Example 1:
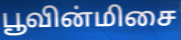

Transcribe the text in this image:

பூவின்மிசை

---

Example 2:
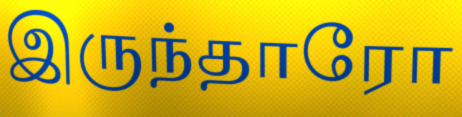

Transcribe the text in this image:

இருந்தாரோ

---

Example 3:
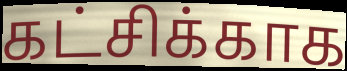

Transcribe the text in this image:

கட்சிக்காக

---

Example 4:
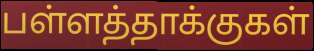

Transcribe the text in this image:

பள்ளத்தாக்குகள்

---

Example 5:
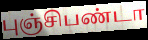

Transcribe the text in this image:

புஞ்சிபண்டா